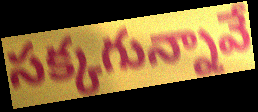
సక్కగున్నావే